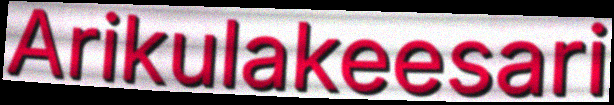
Arikulakeesari